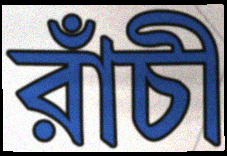
রাঁচী